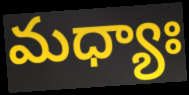
మధ్యాః